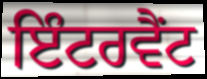
ਇੰਟਰਵੈਂਟ